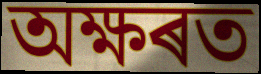
অক্ষৰত